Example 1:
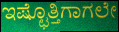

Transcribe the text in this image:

ಇಷ್ಟೊತ್ತಿಗಾಗಲೇ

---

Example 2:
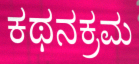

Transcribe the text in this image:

ಕಥನಕ್ರಮ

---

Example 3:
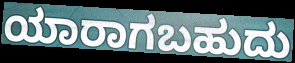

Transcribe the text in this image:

ಯಾರಾಗಬಹುದು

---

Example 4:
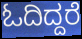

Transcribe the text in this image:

ಓದಿದ್ದರೆ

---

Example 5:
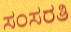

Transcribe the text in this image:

ಸಂಸರತಿ